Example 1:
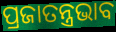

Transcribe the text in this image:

ପ୍ରଜାତନ୍ତ୍ରଭାବ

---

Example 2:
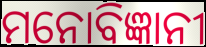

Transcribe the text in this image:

ମନୋବିଜ୍ଞାନୀ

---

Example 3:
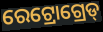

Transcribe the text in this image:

ରେଟ୍ରୋଗ୍ରେଡ୍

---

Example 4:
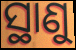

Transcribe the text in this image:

ସ୍ଥାଣୁ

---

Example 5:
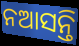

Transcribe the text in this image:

ନଆସନ୍ତି